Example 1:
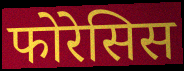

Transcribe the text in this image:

फोरेसिस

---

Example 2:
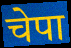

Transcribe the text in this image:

चेपा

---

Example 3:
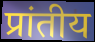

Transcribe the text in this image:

प्रांतीय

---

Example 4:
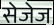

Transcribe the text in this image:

सेजेज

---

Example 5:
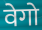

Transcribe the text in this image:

वेगो